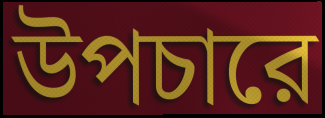
উপচারে